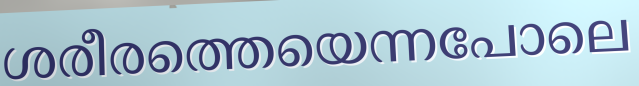
ശരീരത്തെയെന്നപോലെ